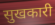
सुखकारी